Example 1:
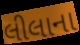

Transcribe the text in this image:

લીલાના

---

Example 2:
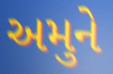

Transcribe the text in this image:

અમુને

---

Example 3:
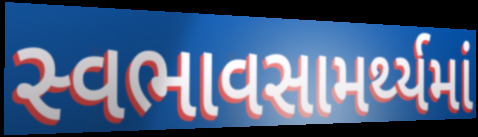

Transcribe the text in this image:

સ્વભાવસામર્થ્યમાં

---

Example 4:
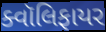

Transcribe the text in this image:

ક્વૉલિફાયર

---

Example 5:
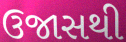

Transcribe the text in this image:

ઉજાસથી